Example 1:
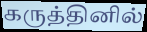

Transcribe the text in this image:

கருத்தினில்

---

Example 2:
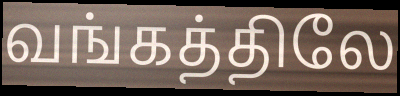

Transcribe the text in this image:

வங்கத்திலே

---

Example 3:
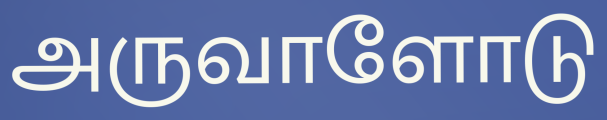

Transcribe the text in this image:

அருவாளோடு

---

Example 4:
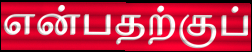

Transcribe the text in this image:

என்பதற்குப்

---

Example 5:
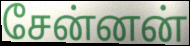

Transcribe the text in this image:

சேன்னன்